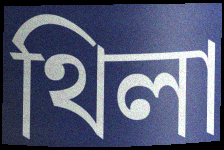
থিলা